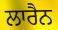
ਲਾਰੈਨ